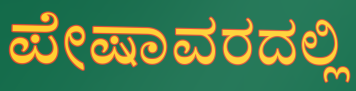
ಪೇಷಾವರದಲ್ಲಿ